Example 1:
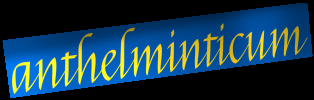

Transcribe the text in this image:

anthelminticum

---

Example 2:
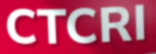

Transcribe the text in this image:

CTCRI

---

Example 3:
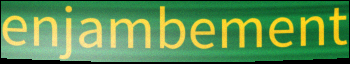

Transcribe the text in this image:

enjambement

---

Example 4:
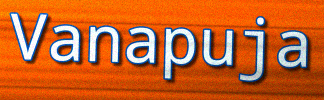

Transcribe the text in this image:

Vanapuja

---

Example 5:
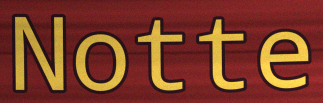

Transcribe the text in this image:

Notte